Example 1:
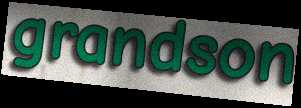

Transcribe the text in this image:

grandson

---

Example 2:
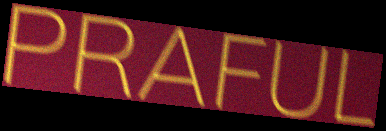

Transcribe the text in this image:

PRAFUL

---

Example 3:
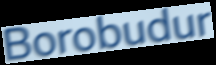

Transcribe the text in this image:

Borobudur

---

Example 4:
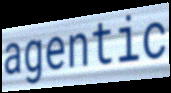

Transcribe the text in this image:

agentic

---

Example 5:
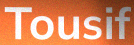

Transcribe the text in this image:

Tousif